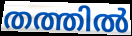
തത്തിൽ